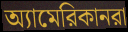
অ্যামেরিকানরা